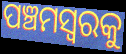
ପଞ୍ଚମସ୍ୱରକୁ